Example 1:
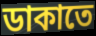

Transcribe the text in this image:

ডাকাতে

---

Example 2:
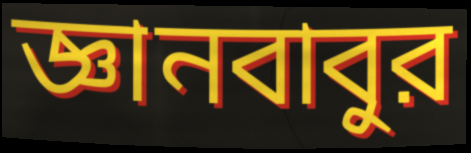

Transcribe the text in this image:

জ্ঞানবাবুর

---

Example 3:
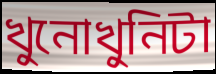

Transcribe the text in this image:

খুনোখুনিটা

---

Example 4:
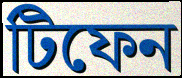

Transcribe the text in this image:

টিফেন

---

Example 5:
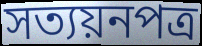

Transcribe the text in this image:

সত্যয়নপত্র